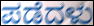
ಪಡೆದಳು